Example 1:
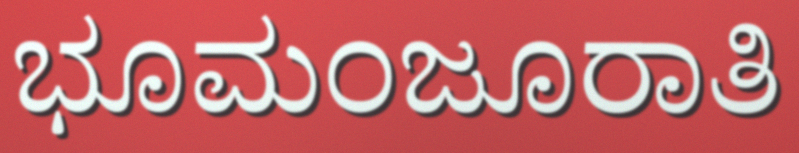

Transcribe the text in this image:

ಭೂಮಂಜೂರಾತಿ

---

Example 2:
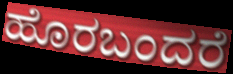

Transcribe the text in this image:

ಹೊರಬಂದರೆ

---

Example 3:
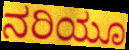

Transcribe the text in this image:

ನರಿಯೂ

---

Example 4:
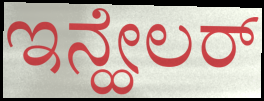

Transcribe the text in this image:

ಇನ್ಹೇಲರ್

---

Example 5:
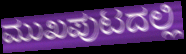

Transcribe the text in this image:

ಮುಖಪುಟದಲ್ಲಿ